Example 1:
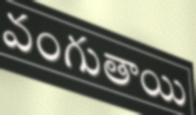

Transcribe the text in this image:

వంగుతాయి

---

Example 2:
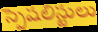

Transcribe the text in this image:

స్పెషలిస్టులు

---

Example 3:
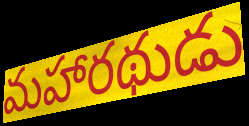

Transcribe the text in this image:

మహారథుడు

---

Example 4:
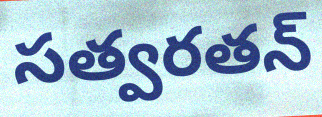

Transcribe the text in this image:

సత్వరతన్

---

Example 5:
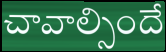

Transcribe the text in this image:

చావాల్సిందే